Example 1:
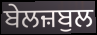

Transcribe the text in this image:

ਬੇਲਜ਼ਬੁਲ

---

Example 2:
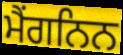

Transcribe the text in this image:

ਮੈਂਗਨਿਨ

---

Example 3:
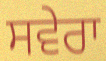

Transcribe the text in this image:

ਸਵੇਰਾ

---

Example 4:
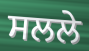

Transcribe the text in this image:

ਸਲਲੇ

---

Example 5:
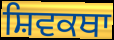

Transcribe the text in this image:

ਸ਼ਿਵਕਥਾ